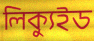
লিক্যুইড